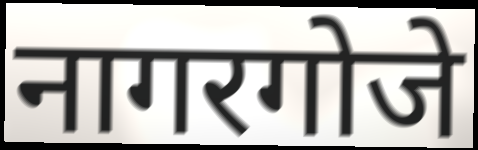
नागरगोजे